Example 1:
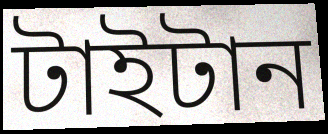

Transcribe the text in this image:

টাইটান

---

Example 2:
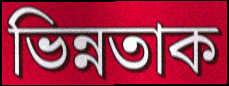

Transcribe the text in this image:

ভিন্নতাক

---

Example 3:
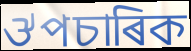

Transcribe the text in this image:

ঔপচাৰিক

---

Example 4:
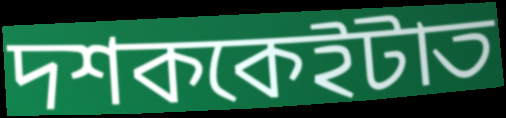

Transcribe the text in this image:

দশককেইটাত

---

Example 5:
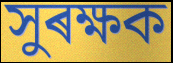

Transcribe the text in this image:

সুৰক্ষক